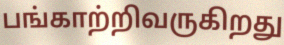
பங்காற்றிவருகிறது